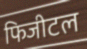
फिजीटल